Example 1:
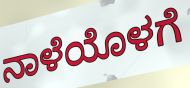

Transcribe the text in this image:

ನಾಳೆಯೊಳಗೆ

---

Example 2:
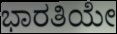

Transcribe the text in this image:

ಭಾರತಿಯೇ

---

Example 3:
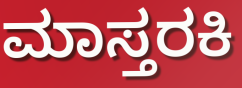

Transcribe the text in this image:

ಮಾಸ್ತರಕಿ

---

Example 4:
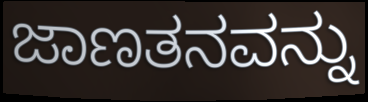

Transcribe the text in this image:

ಜಾಣತನವನ್ನು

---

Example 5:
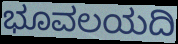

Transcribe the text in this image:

ಭೂವಲಯದಿ